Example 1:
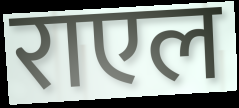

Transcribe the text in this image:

राएल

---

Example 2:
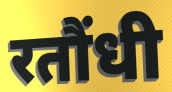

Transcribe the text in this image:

रतौंधी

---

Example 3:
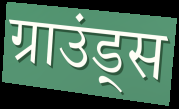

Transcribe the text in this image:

ग्राउंड्स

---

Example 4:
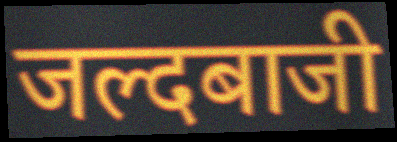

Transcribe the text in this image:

जल्दबाजी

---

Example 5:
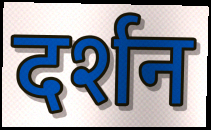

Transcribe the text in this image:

दर्शन